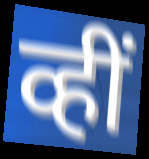
व्हीं